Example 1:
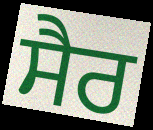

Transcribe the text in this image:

ਸੈਰ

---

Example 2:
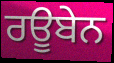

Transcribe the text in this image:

ਰਊਬੇਨ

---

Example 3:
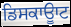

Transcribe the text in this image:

ਡਿਸਕਾਊਾਟ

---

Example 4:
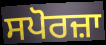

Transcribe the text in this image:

ਸਪੋਰਜ਼ਾ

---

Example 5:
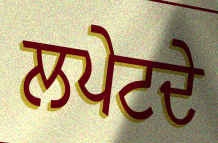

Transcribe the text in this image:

ਲਪੇਟਦੇ